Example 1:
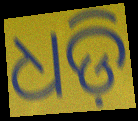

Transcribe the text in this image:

ଧଡ଼ି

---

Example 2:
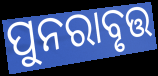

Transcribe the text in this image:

ପୁନରାବୃତ୍ତ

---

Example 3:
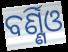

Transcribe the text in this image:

ବର୍ଣ୍ଣିଓ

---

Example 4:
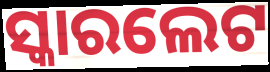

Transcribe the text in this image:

ସ୍କାରଲେଟ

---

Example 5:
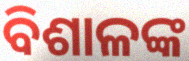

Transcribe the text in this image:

ବିଶାଳଙ୍କ